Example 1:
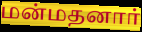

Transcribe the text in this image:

மன்மதனார்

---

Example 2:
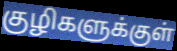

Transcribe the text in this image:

குழிகளுக்குள்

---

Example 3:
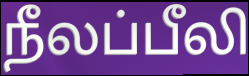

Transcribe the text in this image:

நீலப்பீலி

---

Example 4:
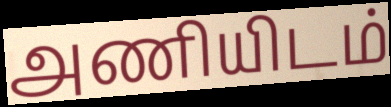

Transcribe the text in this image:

அணியிடம்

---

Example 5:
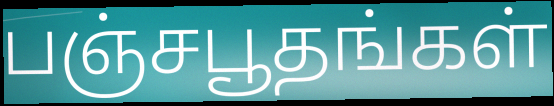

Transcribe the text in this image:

பஞ்சபூதங்கள்